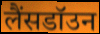
लैंसडॉउन